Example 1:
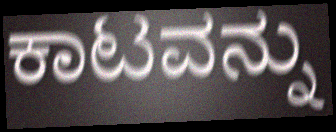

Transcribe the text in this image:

ಕಾಟವನ್ನು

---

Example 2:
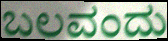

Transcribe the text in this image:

ಬಲವಂದು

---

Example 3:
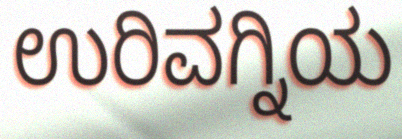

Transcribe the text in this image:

ಉರಿವಗ್ನಿಯ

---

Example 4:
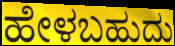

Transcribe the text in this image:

ಹೇಳಬಹುದು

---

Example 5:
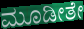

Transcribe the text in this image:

ಮೂಡೀತೇ